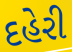
દહેરી